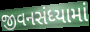
જીવનસંધ્યામાં